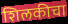
शिलकीचा